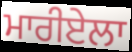
ਮਾਰੀਏਲਾ